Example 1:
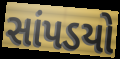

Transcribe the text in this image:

સાંપડયો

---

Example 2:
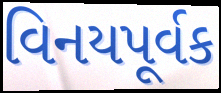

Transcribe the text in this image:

વિનયપૂર્વક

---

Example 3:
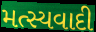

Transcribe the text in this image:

મત્સ્યવાદી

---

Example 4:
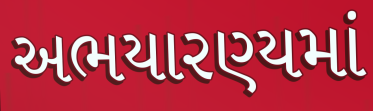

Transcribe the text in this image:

અભયારણ્યમાં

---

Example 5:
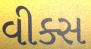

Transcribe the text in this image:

વીક્સ